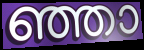
ഞ്ഞാ